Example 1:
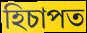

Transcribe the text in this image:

হিচাপত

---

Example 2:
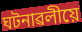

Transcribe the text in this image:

ঘটনাৱলীয়ে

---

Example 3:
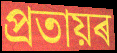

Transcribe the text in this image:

প্ৰতায়ৰ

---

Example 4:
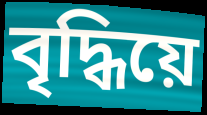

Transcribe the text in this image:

বৃদ্ধিয়ে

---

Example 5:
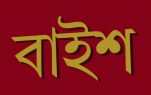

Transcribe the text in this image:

বাইশ